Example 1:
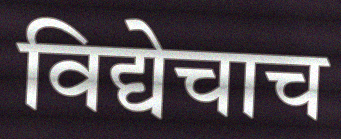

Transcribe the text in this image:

विद्येचाच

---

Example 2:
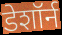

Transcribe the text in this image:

डेशॉर्न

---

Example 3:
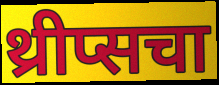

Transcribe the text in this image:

थ्रीप्सचा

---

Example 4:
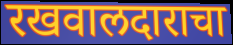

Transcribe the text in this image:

रखवालदाराचा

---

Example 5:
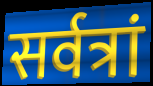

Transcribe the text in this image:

सर्वत्रां